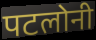
पटलोनी